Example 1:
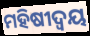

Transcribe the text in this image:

ମହିଷୀଦ୍ୱୟ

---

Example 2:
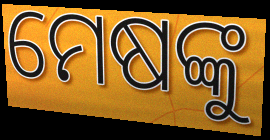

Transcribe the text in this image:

ମେଷଙ୍କୁ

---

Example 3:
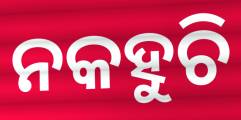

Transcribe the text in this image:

ନକହୁଚି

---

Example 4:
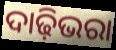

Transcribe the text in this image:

ଦାଢ଼ିଭରା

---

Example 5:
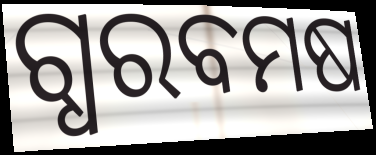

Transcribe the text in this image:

ଗ୍ଧରବମଷ